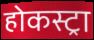
होकस्ट्रा